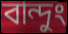
বান্দুং